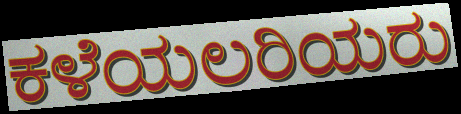
ಕಳೆಯಲರಿಯರು